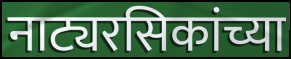
नाट्यरसिकांच्या